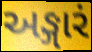
અઙ્ગારં